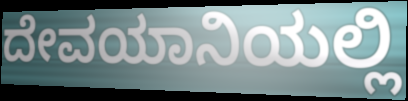
ದೇವಯಾನಿಯಲ್ಲಿ